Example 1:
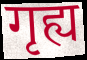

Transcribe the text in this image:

गृह्य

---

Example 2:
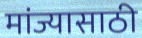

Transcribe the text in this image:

मांज्यासाठी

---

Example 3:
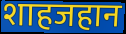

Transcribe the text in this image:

शाहजहान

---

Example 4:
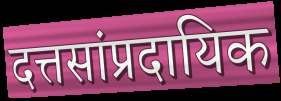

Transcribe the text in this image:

दत्तसांप्रदायिक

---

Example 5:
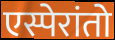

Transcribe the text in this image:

एस्पेरांतो